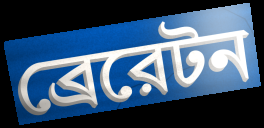
ব্রেরেটন